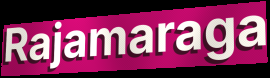
Rajamaraga